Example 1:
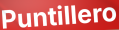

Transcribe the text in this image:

Puntillero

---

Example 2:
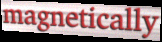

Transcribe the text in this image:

magnetically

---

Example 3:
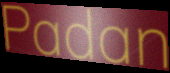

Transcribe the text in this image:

Padan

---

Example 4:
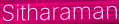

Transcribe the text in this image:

Sitharaman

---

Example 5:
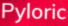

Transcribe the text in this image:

Pyloric